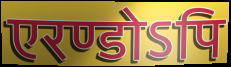
एरण्डोऽपि